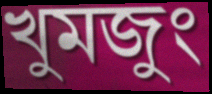
খুমজুং